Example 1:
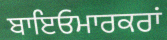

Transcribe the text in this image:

ਬਾਇਓਮਾਰਕਰਾਂ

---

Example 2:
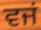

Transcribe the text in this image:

ਵਜਂ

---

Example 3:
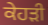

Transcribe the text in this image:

ਕੇਹੜੀ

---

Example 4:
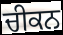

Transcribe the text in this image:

ਚੀਕਨ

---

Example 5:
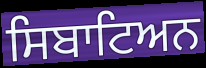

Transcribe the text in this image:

ਸਿਬਾਟਿਅਨ